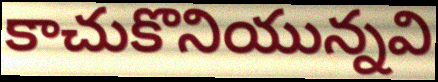
కాచుకొనియున్నవి